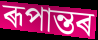
ৰূপান্তৰ